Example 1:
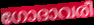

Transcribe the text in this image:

ഗോദാവരീ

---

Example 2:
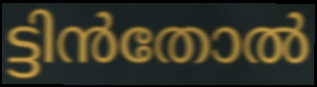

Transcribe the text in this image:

ട്ടിൻതോൽ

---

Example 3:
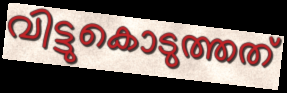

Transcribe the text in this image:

വിട്ടുകൊടുത്തത്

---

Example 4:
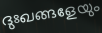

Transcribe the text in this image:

ദുഃഖങ്ങളേയും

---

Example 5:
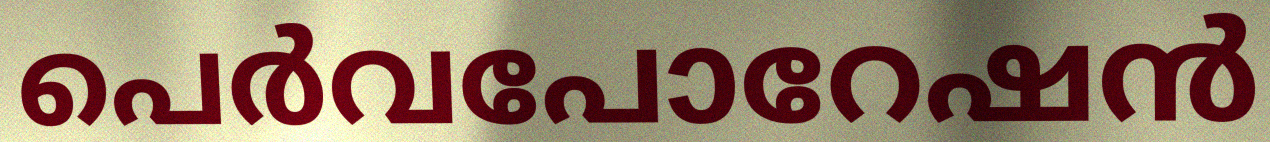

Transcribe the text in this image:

പെർവപോറേഷൻ